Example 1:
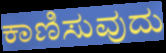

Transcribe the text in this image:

ಕಾಣಿಸುವುದು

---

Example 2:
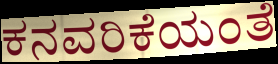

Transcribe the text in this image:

ಕನವರಿಕೆಯಂತೆ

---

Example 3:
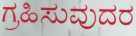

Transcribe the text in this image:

ಗ್ರಹಿಸುವುದರ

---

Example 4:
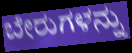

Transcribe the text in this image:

ಬೇರುಗಳನ್ನು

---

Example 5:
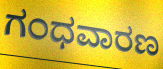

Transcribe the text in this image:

ಗಂಧವಾರಣ